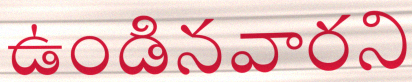
ఉండినవారని